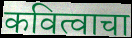
कवित्वाचा